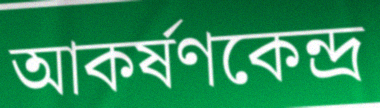
আকর্ষণকেন্দ্র